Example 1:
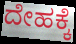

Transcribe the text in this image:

ದೇಹಕ್ಕೆ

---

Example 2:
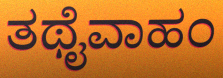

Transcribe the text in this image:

ತಥೈವಾಹಂ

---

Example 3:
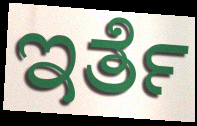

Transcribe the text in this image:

ಇರ್ತೆ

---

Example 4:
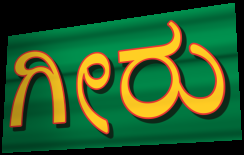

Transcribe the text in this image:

ಗೀರು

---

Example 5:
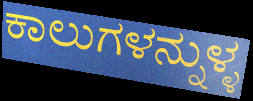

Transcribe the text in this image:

ಕಾಲುಗಳನ್ನುಳ್ಳ